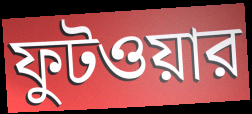
ফুটওয়ার